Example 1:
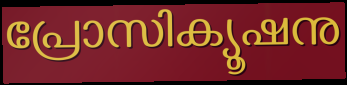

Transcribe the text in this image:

പ്രോസിക്യൂഷനു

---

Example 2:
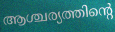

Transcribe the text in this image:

ആശ്ചര്യത്തിന്റെ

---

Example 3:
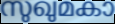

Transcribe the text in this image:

സുഖുമകാ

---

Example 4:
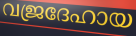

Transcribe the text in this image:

വജ്രദേഹായ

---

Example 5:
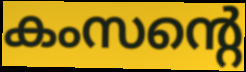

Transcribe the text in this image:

കംസന്റെ